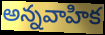
అన్నవాహిక